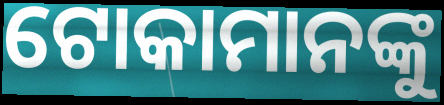
ଟୋକାମାନଙ୍କୁ